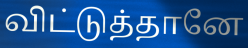
விட்டுத்தானே